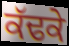
ਕੱਢਕੇ